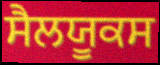
ਸੈਲਯੂਕਸ